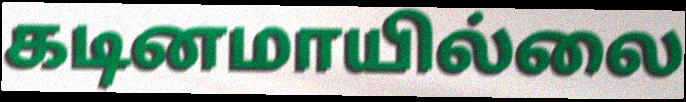
கடினமாயில்லை